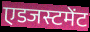
एडजस्‍टमेंट